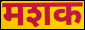
मशक